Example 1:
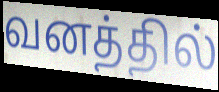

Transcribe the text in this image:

வனத்தில்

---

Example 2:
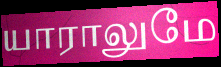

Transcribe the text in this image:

யாராலுமே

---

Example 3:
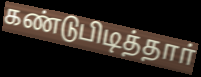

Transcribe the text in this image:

கண்டுபிடித்தார்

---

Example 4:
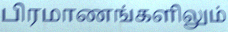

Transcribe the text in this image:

பிரமாணங்களிலும்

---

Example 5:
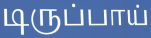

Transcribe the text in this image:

டிருப்பாய்